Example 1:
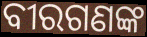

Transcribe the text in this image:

ବୀରଗଣଙ୍କ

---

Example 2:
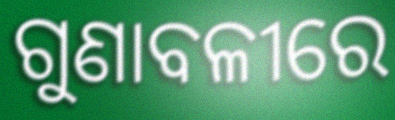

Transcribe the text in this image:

ଗୁଣାବଳୀରେ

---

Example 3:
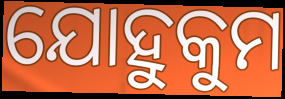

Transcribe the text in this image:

ଯୋହୁକୁମ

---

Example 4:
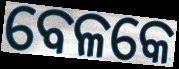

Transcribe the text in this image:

ବେଳକେ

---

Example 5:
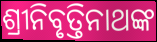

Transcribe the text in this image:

ଶ୍ରୀନିବୃତ୍ତିନାଥଙ୍କ